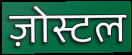
ज़ोस्टल